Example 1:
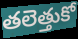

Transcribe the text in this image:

తలెత్తుకో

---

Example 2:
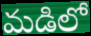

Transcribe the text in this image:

మడిలో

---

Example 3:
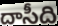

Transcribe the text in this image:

దాసీది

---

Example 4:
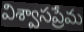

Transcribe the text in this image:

విశ్వాసప్రేమ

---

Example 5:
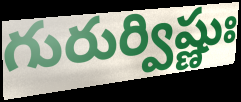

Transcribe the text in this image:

గురుర్విష్ణుః